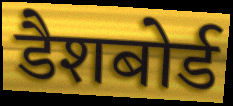
डैशबोर्ड